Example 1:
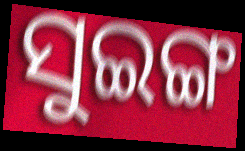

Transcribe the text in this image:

ସୁଇଙ୍ଗ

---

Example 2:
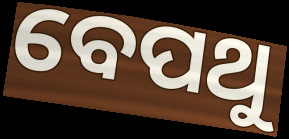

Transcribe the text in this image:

ବେପଥୁ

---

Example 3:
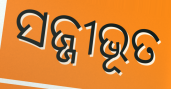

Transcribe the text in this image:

ସଜ୍ଜୀଭୂତ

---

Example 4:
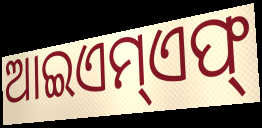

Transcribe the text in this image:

ଆଇଏମ୍ଏଫ୍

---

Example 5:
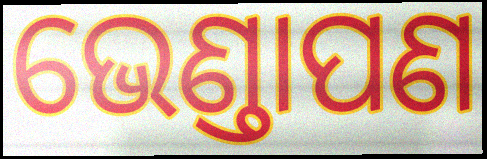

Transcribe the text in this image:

ଭେଣ୍ଡାପଣ